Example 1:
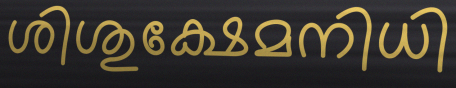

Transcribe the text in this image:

ശിശുക്ഷേമനിധി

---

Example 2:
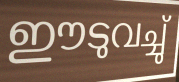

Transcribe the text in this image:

ഈടുവച്ചു്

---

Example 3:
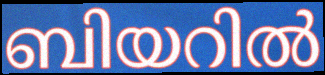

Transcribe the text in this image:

ബിയറിൽ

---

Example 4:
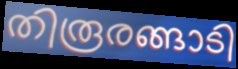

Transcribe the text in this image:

തിരൂരങ്ങാടി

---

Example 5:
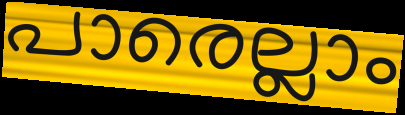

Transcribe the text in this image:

പാരെല്ലാം